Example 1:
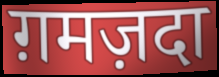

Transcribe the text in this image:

ग़मज़दा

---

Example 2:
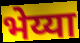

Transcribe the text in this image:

भेय्या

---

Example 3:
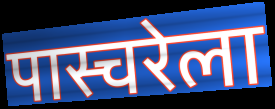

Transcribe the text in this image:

पास्चरेला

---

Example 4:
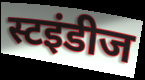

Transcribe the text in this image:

स्टइंडीज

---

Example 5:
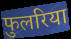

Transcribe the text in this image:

फुलरिया